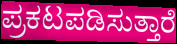
ಪ್ರಕಟಪಡಿಸುತ್ತಾರೆ